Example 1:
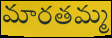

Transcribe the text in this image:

మారతమ్మ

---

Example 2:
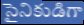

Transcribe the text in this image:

సైనికుడిగా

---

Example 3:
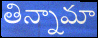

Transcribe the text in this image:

తిన్నామా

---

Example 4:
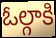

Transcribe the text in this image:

ఓల్గాకి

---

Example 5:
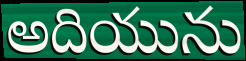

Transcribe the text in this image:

అదియును